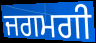
ਜਗਮਗੀ